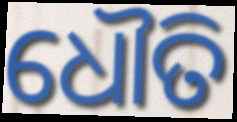
ଧୌତି